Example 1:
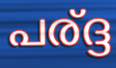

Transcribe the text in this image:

പര്ദ്ദ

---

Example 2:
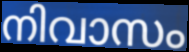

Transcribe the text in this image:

നിവാസം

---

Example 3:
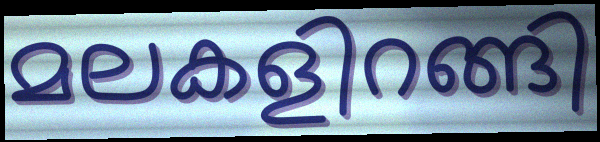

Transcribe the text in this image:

മലകളിറങ്ങി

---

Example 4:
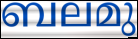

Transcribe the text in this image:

ബലമു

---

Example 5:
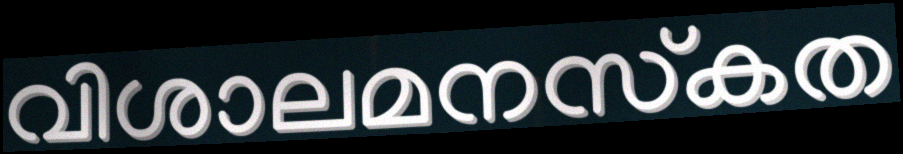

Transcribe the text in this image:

വിശാലമനസ്‌കത